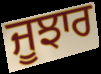
ਜੂਝਾਰ